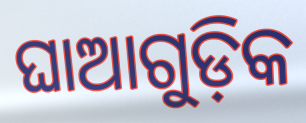
ଘାଆଗୁଡ଼ିକ